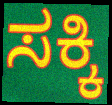
ಸಕ್ಕಿ